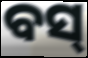
ବସ୍